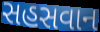
સહસવાન